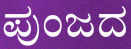
ಪುಂಜದ